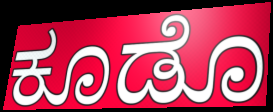
ಕೂಡೊ